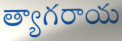
త్యాగరాయ